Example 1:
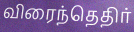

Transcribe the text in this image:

விரைந்தெதிர்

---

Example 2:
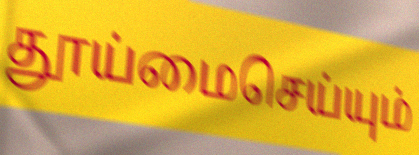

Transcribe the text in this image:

தூய்மைசெய்யும்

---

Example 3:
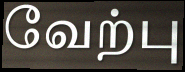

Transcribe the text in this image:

வேற்பு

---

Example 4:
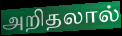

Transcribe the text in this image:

அறிதலால்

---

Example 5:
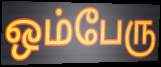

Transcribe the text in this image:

ஒம்பேரு